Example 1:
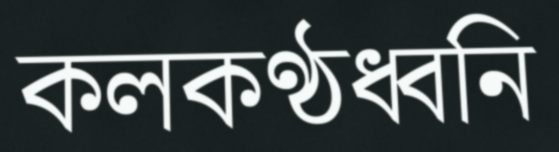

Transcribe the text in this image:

কলকণ্ঠধ্বনি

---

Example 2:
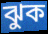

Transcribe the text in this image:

ঝুক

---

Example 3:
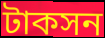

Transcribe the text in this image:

টাকসন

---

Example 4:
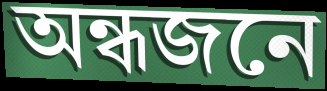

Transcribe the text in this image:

অন্ধজনে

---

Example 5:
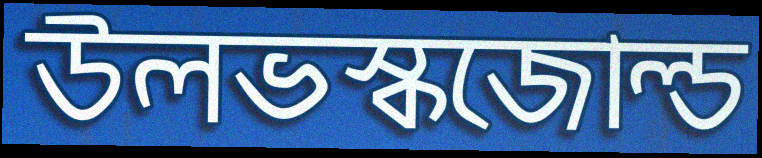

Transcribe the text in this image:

উলভস্কজোল্ড